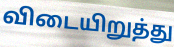
விடையிறுத்து